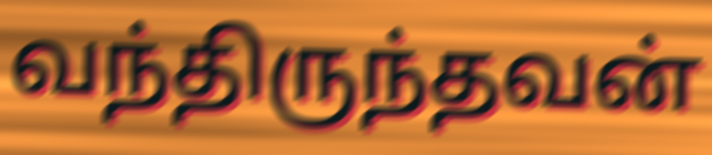
வந்திருந்தவன்